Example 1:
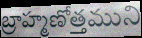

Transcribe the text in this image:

బ్రాహ్మణోత్తముని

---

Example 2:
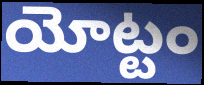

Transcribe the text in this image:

యోట్టం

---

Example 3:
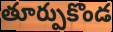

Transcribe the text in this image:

తూర్పుకొండ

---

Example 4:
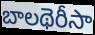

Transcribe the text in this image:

బాలథెరీసా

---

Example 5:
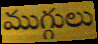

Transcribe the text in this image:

ముగ్గులు